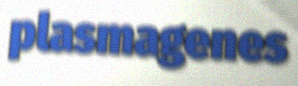
plasmagenes